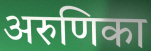
अरुणिका